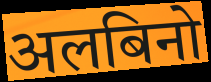
अलबिनो